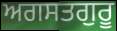
ਅਗਸਤਗੁਰੂ